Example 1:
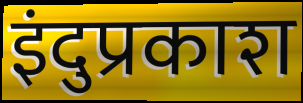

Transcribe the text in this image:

इंदुप्रकाश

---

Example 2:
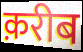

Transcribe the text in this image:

क़रीब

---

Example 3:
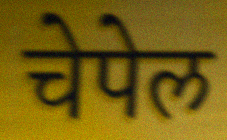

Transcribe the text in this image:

चेपेल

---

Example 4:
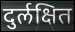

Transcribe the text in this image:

दुर्लक्षित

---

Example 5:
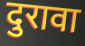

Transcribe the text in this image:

दुरावा